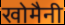
खोमैनी